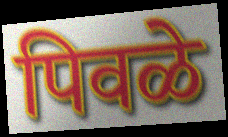
पिवळे